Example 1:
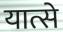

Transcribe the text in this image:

यात्से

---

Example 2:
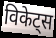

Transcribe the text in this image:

विकेट्स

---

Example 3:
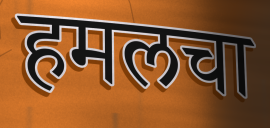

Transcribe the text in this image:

हमलचा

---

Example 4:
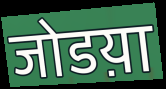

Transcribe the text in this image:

जोडय़ा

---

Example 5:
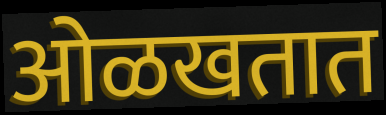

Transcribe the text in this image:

ओळखतात